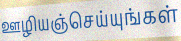
ஊழியஞ்செய்யுங்கள்